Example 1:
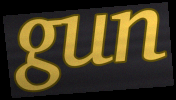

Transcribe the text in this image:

gun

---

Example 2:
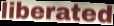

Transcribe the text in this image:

liberated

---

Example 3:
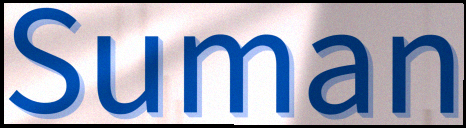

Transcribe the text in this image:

Suman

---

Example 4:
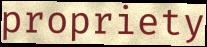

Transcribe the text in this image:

propriety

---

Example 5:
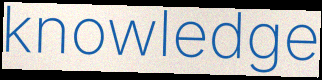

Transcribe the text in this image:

knowledge